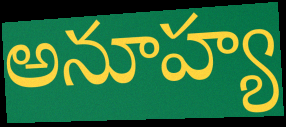
అనూహ్య